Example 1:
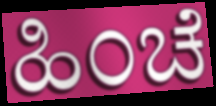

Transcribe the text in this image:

ಹಿಂಚೆ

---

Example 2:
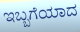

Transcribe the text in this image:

ಇಬ್ಬಗೆಯಾದ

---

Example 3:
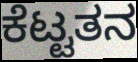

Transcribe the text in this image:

ಕೆಟ್ಟತನ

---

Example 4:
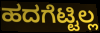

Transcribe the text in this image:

ಹದಗೆಟ್ಟಿಲ್ಲ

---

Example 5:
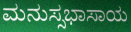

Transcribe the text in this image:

ಮನುಸ್ಸಭಾಸಾಯ